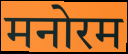
मनोरम